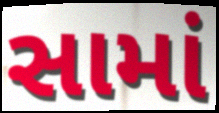
સામાં